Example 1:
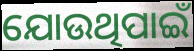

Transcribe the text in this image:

ଯୋଉଥିପାଇଁ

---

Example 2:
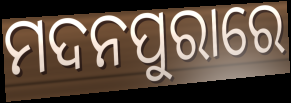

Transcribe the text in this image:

ମଦନପୁରାରେ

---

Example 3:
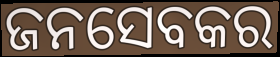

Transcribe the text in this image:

ଜନସେବକର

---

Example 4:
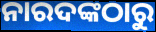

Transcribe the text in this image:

ନାରଦଙ୍କଠାରୁ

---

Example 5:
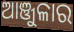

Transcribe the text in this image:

ଆଞ୍ଜୁଳାର